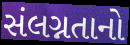
સંલગ્નતાનો